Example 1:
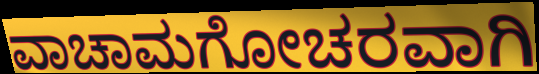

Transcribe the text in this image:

ವಾಚಾಮಗೋಚರವಾಗಿ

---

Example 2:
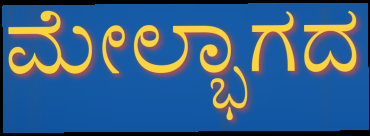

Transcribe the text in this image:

ಮೇಲ್ಭಾಗದ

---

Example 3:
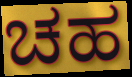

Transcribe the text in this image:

ಚಹ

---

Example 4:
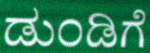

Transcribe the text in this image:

ಡುಂಡಿಗೆ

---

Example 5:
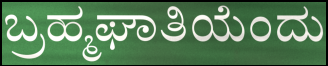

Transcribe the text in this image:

ಬ್ರಹ್ಮಘಾತಿಯೆಂದು